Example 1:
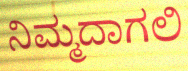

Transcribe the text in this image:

ನಿಮ್ಮದಾಗಲಿ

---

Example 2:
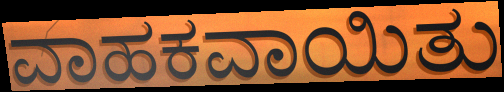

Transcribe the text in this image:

ವಾಹಕವಾಯಿತು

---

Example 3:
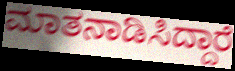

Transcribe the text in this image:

ಮಾತನಾಡಿಸಿದ್ದಾರೆ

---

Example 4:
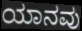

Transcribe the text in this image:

ಯಾನವು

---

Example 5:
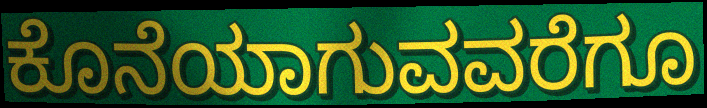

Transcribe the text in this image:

ಕೊನೆಯಾಗುವವರೆಗೂ